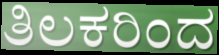
ತಿಲಕರಿಂದ